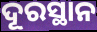
ଦୂରସ୍ଥାନ